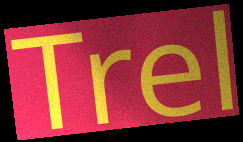
Trel